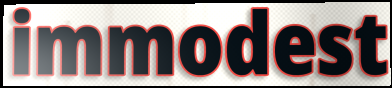
immodest